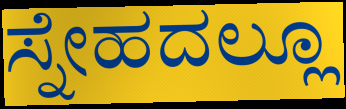
ಸ್ನೇಹದಲ್ಲೂ